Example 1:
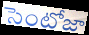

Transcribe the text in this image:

సెంటోజా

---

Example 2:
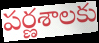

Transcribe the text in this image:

పర్ణశాలకు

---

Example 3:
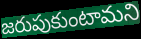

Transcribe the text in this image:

జరుపుకుంటామని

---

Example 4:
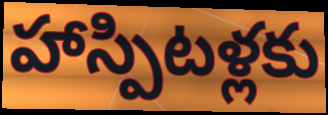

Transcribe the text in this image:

హాస్పిటళ్లకు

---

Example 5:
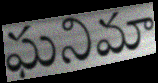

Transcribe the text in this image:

ఘనిమా